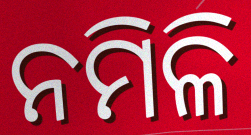
ନମିଳି